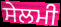
ਸੇਲਮੀ